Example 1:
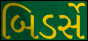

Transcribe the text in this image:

બિડર્સે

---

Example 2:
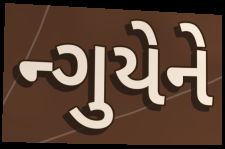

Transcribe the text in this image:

ન્ગુયેને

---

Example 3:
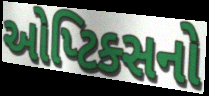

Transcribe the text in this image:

ઓપ્ટિક્સનો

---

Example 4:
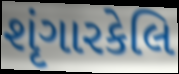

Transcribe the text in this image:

શૃંગારકેલિ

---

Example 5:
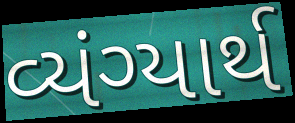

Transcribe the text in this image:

વ્યંગ્યાર્થ